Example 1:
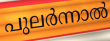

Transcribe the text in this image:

പുലർന്നാൽ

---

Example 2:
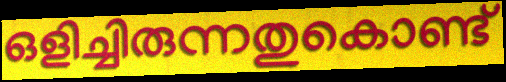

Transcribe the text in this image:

ഒളിച്ചിരുന്നതുകൊണ്ട്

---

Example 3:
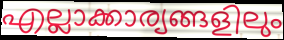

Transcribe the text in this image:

എല്ലാക്കാര്യങ്ങളിലും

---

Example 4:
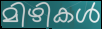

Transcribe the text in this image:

മിഴികൾ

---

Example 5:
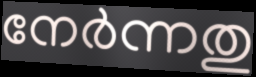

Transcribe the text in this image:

നേർന്നതു